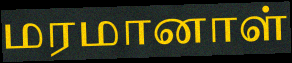
மரமானாள்